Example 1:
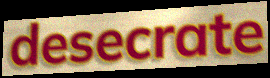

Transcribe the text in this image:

desecrate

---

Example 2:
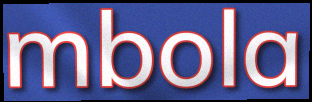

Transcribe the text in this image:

mbola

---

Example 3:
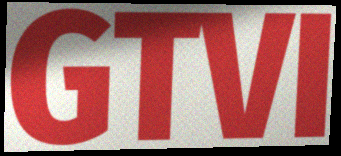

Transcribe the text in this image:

GTVI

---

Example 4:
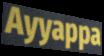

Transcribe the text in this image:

Ayyappa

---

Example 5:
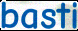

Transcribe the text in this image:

basti